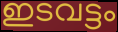
ഇടവട്ടം